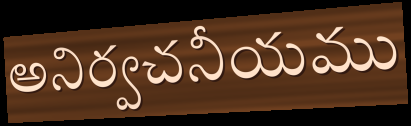
అనిర్వచనీయము